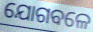
ଯୋଗବଳେ